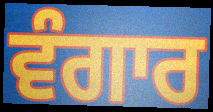
ਵੰਗਾਰ